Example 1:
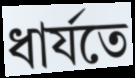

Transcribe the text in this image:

ধার্যতে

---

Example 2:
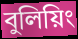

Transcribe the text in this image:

বুলিয়িং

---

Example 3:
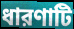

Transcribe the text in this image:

ধারণাটি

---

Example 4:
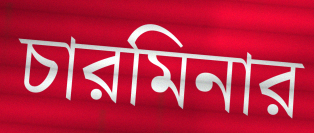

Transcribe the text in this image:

চারমিনার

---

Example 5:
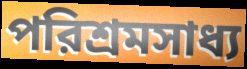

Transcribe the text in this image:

পরিশ্রমসাধ্য